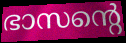
ഭാസന്റെ